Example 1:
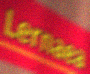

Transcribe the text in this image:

Lernaea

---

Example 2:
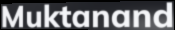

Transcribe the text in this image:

Muktanand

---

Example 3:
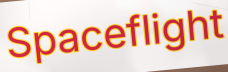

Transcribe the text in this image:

Spaceflight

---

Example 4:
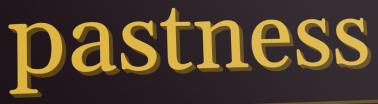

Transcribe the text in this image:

pastness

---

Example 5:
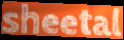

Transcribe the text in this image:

sheetal